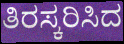
ತಿರಸ್ಕರಿಸಿದ